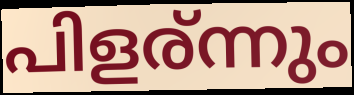
പിളര്ന്നും